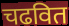
चढवित